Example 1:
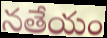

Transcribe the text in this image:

నతేయం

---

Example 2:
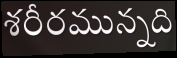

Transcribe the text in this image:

శరీరమున్నది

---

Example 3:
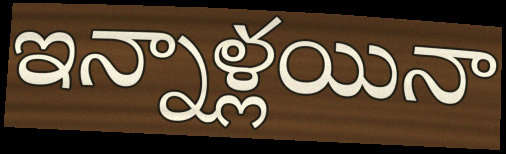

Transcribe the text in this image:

ఇన్నాళ్లయినా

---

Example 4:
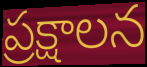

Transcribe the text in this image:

ప్రక్షాలన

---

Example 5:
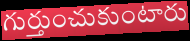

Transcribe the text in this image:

గుర్తుంచుకుంటారు